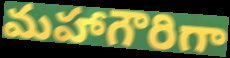
మహాగౌరిగా